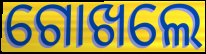
ଗୋଖଲେ